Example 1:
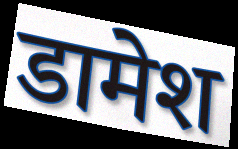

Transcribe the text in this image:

डामेश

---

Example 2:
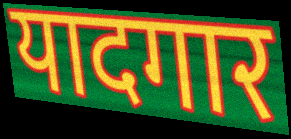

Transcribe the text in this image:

यादगार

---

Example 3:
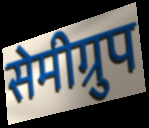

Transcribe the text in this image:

सेमीग्रुप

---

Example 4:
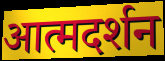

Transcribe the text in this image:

आत्मदर्शन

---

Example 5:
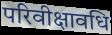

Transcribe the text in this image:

परिवीक्षावधि